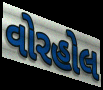
વોરહોલ